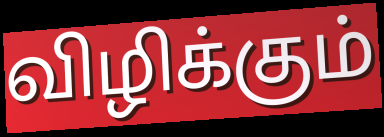
விழிக்கும்